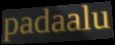
padaalu